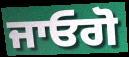
ਜਾਓਗੋ